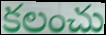
కలంచు